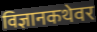
विज्ञानकथेवर